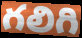
గలిగి